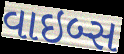
વાઇબ્સ